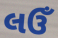
લઉઁ